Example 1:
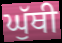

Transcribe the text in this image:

ਘੁੱਥੀ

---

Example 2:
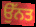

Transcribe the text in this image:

ਉੱਨਤ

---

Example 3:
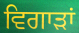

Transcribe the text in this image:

ਵਿਗਾੜਾਂ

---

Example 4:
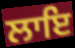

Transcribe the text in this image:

ਲਾਇ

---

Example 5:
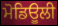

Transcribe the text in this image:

ਮੋਡਿਊਲੀ